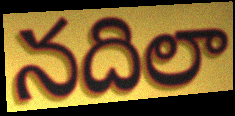
నదిలా